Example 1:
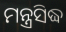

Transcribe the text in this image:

ମନ୍ତ୍ରସିଦ୍ଧ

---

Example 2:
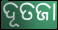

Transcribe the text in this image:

ଦୂତଜା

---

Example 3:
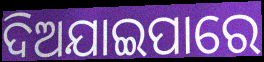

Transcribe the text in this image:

ଦିଅଯାଇପାରେ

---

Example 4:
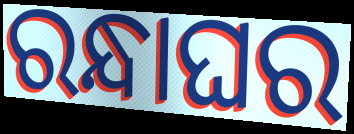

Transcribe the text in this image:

ରନ୍ଧାଘର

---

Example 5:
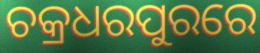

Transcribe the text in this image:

ଚକ୍ରଧରପୁରରେ